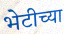
भेटीच्या